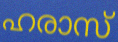
ഹരാസ്